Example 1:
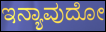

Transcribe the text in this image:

ಇನ್ಯಾವುದೋ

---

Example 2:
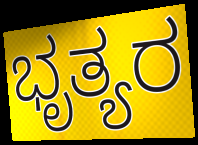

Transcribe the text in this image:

ಭೃತ್ಯರ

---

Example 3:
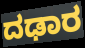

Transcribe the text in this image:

ದಢಾರ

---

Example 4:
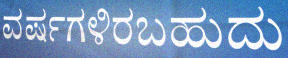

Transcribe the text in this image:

ವರ್ಷಗಳಿರಬಹುದು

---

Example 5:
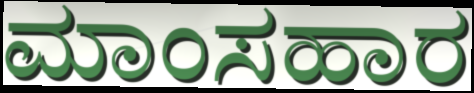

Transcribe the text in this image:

ಮಾಂಸಹಾರ